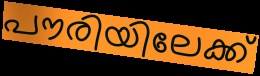
പൗരിയിലേക്ക്